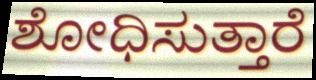
ಶೋಧಿಸುತ್ತಾರೆ